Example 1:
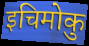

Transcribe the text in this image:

इचिमोकु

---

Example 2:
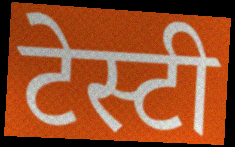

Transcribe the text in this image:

टेस्टी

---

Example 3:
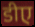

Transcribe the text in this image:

डीए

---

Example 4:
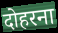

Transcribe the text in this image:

दोहरना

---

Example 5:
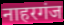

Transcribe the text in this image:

नाहरगंज